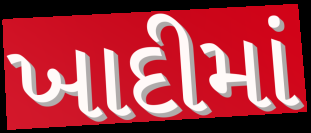
ખાદીમાં